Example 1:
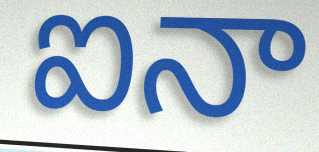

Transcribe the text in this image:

ఐనా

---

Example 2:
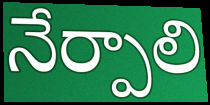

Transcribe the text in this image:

నేర్పాలి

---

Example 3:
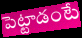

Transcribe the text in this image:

పెట్టాడంటే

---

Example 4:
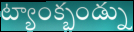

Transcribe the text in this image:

ట్యాంక్బండ్ను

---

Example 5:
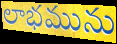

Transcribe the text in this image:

లాభమును